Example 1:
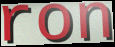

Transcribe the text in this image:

ron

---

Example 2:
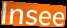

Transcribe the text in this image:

Insee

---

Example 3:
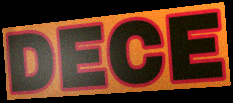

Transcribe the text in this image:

DECE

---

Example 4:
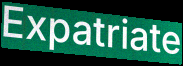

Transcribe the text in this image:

Expatriate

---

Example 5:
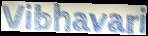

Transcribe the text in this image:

Vibhavari